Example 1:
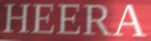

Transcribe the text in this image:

HEERA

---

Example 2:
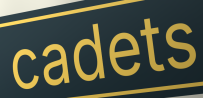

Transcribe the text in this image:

cadets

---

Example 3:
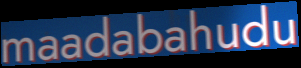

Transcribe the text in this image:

maadabahudu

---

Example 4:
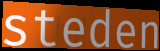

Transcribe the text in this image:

steden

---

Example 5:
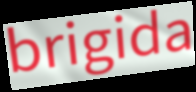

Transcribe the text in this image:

brigida